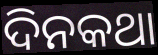
ଦିନକଥା